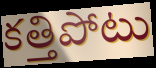
కత్తిపోటు